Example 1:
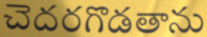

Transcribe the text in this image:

చెదరగొడతాను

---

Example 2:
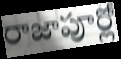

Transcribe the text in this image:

రాజాపూర్లో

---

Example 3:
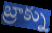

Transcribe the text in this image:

బ్రాక్ను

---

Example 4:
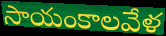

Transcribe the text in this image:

సాయంకాలవేళ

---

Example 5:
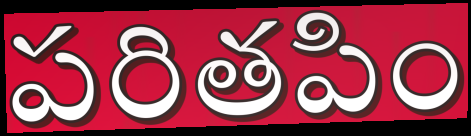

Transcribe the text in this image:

పరితపిం